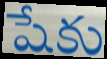
షేకు